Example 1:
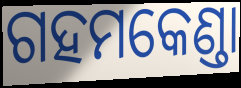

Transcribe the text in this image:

ଗହମକେଣ୍ଡା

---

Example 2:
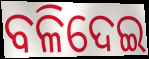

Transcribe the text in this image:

ବଳିଦେଇ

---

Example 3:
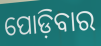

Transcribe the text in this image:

ପୋଡ଼ିବାର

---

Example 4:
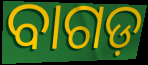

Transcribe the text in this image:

ବାଗଡ଼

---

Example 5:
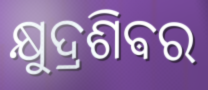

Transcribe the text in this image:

କ୍ଷୁଦ୍ରଶିଵର